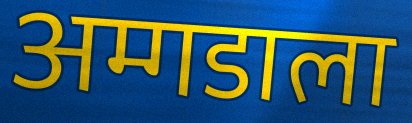
अम्गडाला